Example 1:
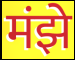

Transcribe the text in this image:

मंझे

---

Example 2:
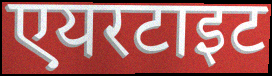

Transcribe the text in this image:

एयरटाइट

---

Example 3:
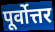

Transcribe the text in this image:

पूर्वोत्तर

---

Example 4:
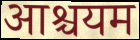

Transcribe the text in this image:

आश्चयम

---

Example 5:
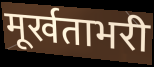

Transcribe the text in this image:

मूर्खताभरी